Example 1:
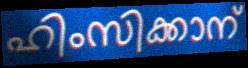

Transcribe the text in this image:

ഹിംസിക്കാന്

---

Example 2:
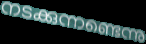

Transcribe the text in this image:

നടക്കുന്നണ്ടെന്നു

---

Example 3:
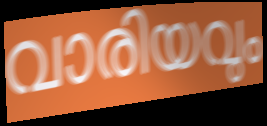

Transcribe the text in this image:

വാരിയവും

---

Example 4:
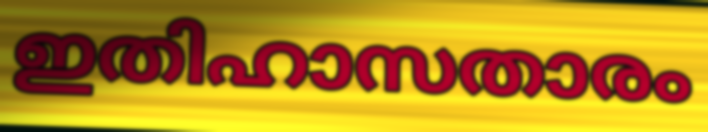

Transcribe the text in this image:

ഇതിഹാസതാരം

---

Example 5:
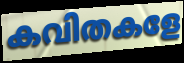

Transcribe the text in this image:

കവിതകളേ